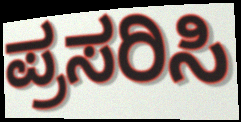
ಪ್ರಸರಿಸಿ